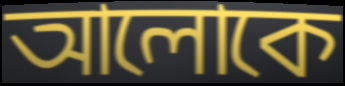
আলোকে